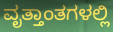
ವೃತ್ತಾಂತಗಳಲ್ಲಿ